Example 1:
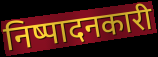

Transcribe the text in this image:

निष्पादनकारी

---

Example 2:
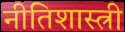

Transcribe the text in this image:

नीतिशास्त्री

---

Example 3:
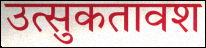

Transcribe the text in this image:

उत्सुकतावश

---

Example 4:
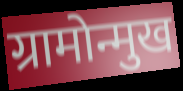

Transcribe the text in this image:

ग्रामोन्मुख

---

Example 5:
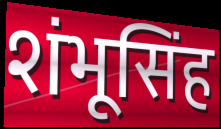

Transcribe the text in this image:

शंभूसिंह